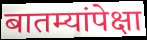
बातम्यांपेक्षा